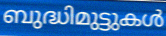
ബുദ്ധിമുട്ടുകൾ